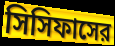
সিসিফাসের